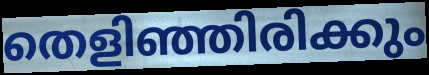
തെളിഞ്ഞിരിക്കും